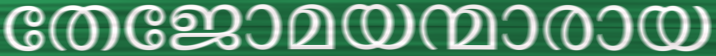
തേജോമയന്മാരായ